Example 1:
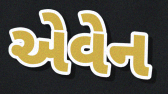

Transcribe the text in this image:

એવેન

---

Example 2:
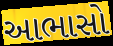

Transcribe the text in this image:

આભાસો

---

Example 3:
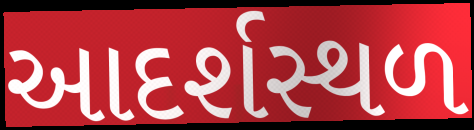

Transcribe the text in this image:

આદર્શસ્થળ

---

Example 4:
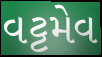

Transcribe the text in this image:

વટ્ટમેવ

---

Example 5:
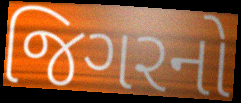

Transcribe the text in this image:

જિગરનો